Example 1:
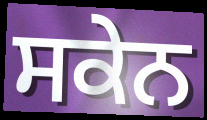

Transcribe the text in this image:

ਸਕੇਨ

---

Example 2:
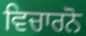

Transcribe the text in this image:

ਵਿਚਾਰਨੋ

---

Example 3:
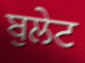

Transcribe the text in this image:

ਬੁਲੇਟ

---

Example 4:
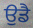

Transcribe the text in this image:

ਉਡੈ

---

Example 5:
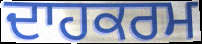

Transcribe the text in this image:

ਦਾਹਕਰਮ